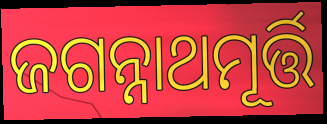
ଜଗନ୍ନାଥମୂର୍ତ୍ତି